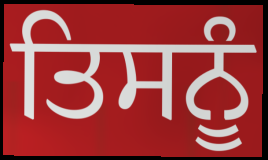
ਤਿਸਨੂੰ